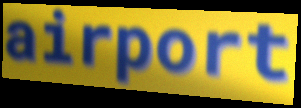
airport